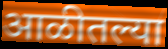
आळीतल्या